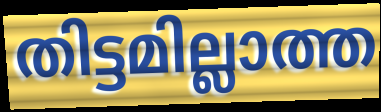
തിട്ടമില്ലാത്ത